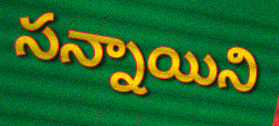
సన్నాయిని